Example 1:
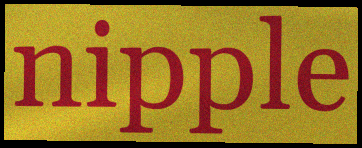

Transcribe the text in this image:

nipple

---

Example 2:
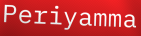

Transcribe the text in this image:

Periyamma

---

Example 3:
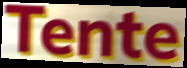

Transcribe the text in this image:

Tente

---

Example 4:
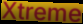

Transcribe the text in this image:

Xtreme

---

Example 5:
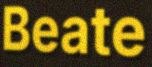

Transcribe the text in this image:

Beate